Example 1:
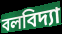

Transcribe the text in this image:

বলবিদ্যা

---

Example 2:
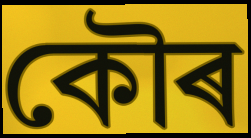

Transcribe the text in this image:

কৌৰ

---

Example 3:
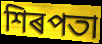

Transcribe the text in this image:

শিৰপতা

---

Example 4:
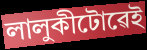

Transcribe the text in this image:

লালুকীটোৱেই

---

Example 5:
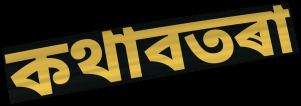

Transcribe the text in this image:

কথাবতৰা